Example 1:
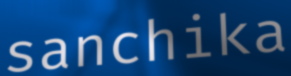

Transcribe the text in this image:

sanchika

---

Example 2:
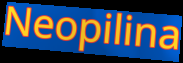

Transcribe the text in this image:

Neopilina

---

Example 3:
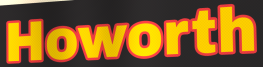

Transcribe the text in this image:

Howorth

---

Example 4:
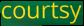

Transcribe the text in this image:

courtsy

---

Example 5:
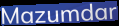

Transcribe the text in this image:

Mazumdar